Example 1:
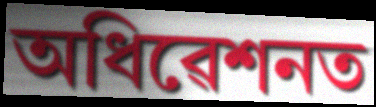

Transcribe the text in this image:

অধিৱেশনত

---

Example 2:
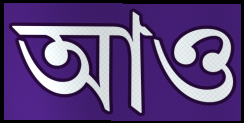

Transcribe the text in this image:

আও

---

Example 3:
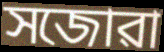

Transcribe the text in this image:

সজোৱা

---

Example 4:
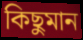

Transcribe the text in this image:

কিছুমান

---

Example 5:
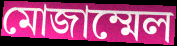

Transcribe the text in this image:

মোজাম্মেল